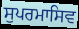
ਸੁਪਰਮਾਸਿਵ